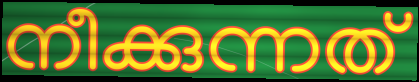
നീക്കുന്നത്